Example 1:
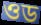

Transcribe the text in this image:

ওড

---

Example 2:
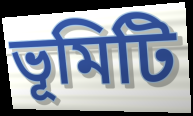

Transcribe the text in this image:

ভূমিটি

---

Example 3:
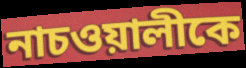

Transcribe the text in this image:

নাচওয়ালীকে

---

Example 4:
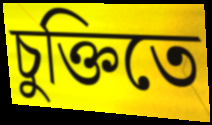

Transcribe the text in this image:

চুক্তিতে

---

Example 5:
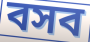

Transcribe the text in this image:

বসব